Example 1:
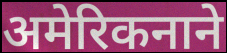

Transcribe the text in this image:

अमेरिकनाने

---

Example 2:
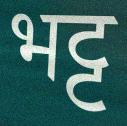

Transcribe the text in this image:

भट्ट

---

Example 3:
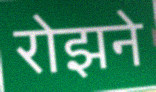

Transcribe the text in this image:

रोझने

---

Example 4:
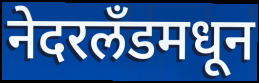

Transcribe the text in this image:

नेदरलँडमधून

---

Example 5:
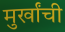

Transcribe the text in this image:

मुर्खांची